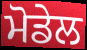
ਮੋਡੇਲ